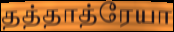
தத்தாத்ரேயா